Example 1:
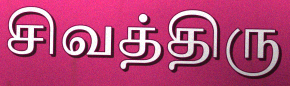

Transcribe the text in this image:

சிவத்திரு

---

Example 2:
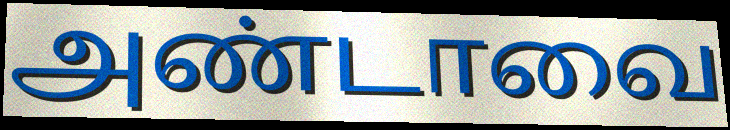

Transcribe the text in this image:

அண்டாவை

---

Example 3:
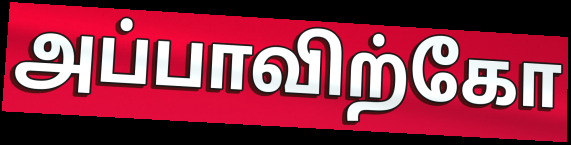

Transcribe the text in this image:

அப்பாவிற்கோ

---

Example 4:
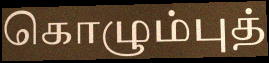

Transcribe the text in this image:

கொழும்புத்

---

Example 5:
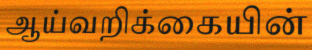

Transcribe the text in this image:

ஆய்வறிக்கையின்